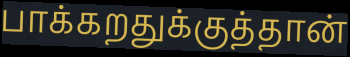
பாக்கறதுக்குத்தான்